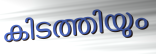
കിടത്തിയും